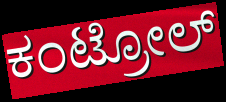
ಕಂಟ್ರೋಲ್